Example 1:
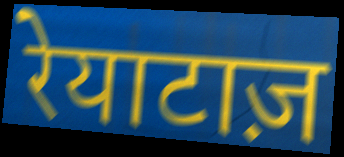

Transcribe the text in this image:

रेयाटाज़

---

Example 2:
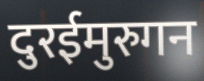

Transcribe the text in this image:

दुरईमुरुगन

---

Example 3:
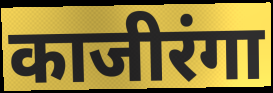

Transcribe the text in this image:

काजीरंगा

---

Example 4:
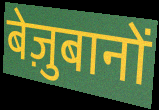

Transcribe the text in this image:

बेज़ुबानों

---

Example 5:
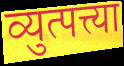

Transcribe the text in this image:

व्युत्पत्त्या